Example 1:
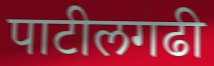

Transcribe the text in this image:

पाटीलगढी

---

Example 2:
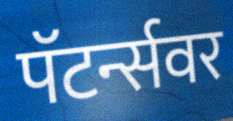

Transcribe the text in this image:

पॅटर्न्सवर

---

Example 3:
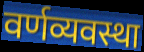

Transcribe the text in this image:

वर्णव्यवस्था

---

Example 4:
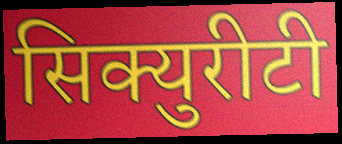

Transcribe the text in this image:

सिक्युरीटी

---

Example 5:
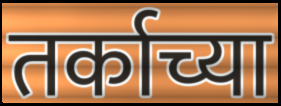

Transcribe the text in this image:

तर्काच्या